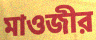
মাওজীর